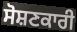
ਸੋਸ਼ਣਕਾਰੀ